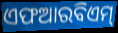
ଏଫଆରବିଏମ୍